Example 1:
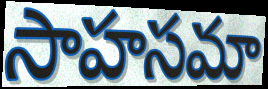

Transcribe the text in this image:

సాహసమా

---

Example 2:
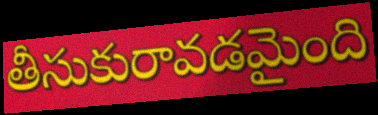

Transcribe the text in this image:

తీసుకురావడమైంది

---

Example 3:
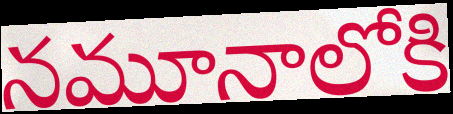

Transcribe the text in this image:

నమూనాలోకి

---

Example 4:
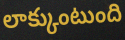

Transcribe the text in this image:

లాక్కుంటుంది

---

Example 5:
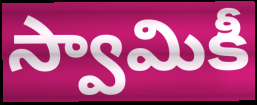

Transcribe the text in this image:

స్వామికీ